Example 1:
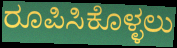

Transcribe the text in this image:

ರೂಪಿಸಿಕೊಳ್ಳಲು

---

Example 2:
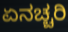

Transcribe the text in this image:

ಏನಚ್ಚರಿ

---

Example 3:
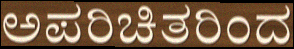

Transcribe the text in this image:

ಅಪರಿಚಿತರಿಂದ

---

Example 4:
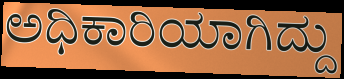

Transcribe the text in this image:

ಅಧಿಕಾರಿಯಾಗಿದ್ದು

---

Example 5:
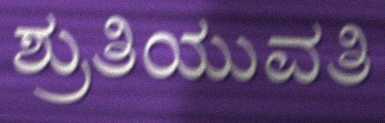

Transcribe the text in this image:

ಶ್ರುತಿಯುವತಿ